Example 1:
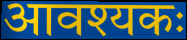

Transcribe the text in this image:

आवश्यकः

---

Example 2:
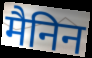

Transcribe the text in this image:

मैनिन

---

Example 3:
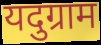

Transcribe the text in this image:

यदुग्राम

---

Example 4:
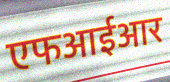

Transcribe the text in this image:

एफआईआर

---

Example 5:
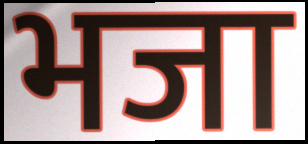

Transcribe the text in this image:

भजा